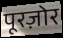
पूरज़ोर